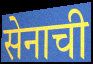
सेनाची